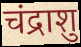
चंद्राशु